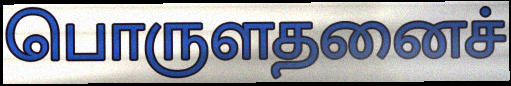
பொருளதனைச்